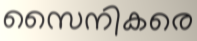
സൈനികരെ